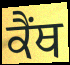
ਕੈਂਥ